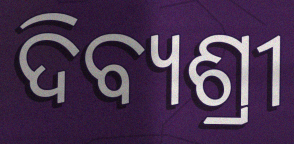
ଦିବ୍ୟଶ୍ରୀ